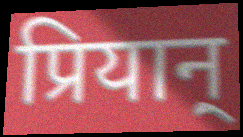
प्रियान्